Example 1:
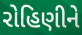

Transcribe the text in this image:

રોહિણીને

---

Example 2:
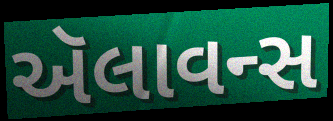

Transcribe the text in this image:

ઍલાવન્સ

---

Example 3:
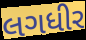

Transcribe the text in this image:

લગધીર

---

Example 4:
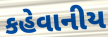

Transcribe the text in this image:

કહેવાનીય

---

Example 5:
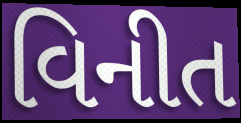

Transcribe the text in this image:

વિનીત